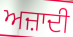
ਅਜ਼ਾਦੀ